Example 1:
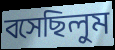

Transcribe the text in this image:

বসেছিলুম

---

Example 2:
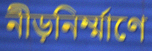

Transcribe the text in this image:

নীড়নির্ম্মাণে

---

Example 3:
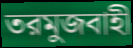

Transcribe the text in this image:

তরমুজবাহী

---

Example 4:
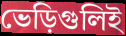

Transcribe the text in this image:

ভেড়িগুলিই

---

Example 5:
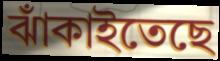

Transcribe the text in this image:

ঝাঁকাইতেছে